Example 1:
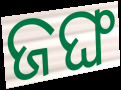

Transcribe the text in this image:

ଜଙ୍ଘ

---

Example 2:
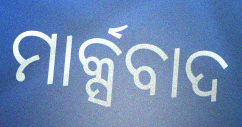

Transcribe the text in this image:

ମାର୍କ୍ସବାଦ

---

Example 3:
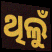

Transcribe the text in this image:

ଥିଲୁଁ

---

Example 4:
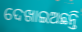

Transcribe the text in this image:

ଦେଖାଇଅଛନ୍ତି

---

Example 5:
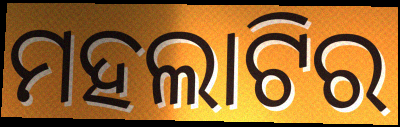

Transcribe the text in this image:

ମହଲାଟିର